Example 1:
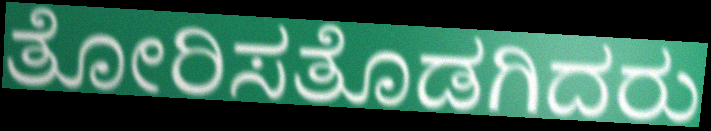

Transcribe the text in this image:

ತೋರಿಸತೊಡಗಿದರು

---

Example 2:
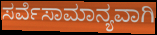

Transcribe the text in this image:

ಸರ್ವೆಸಾಮಾನ್ಯವಾಗಿ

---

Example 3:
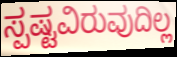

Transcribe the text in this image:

ಸ್ಪಷ್ಟವಿರುವುದಿಲ್ಲ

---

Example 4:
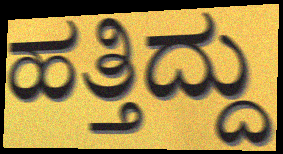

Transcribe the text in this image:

ಹತ್ತಿದ್ದು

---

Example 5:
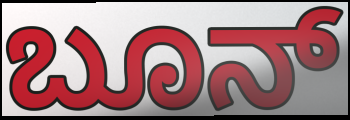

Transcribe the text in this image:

ಬೂನ್